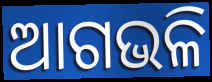
ଆଗଭଳି